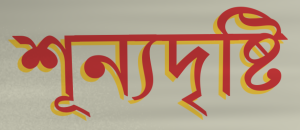
শূন্যদৃষ্টি